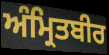
ਅੰਮ੍ਰਿਤਬੀਰ